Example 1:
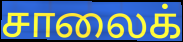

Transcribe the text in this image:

சாலைக்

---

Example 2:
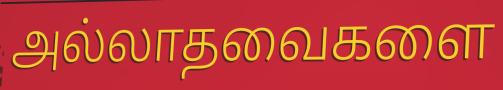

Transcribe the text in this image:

அல்லாதவைகளை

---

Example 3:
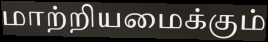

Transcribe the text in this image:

மாற்றியமைக்கும்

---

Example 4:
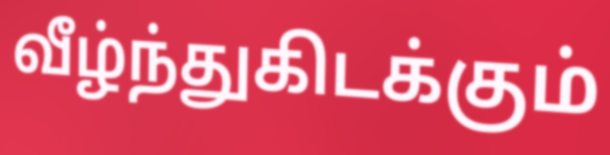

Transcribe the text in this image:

வீழ்ந்துகிடக்கும்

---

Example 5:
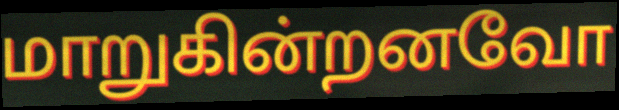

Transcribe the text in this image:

மாறுகின்றனவோ